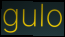
gulo